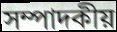
সম্পাদকীয়